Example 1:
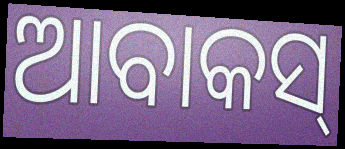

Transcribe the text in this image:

ଆବାକସ୍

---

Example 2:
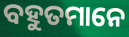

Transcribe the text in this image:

ବହୁତମାନେ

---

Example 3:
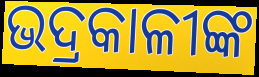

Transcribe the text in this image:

ଭଦ୍ରକାଳୀଙ୍କ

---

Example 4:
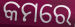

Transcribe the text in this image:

କମରେ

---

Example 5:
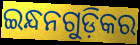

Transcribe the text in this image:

ଇନ୍ଧନଗୁଡ଼ିକର